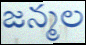
జన్మల